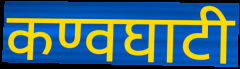
कण्वघाटी